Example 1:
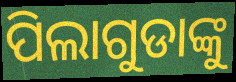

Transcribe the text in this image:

ପିଲାଗୁଡାଙ୍କୁ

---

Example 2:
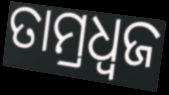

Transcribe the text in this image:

ତାମ୍ରଧ୍ୱଜ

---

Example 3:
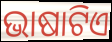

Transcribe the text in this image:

ଭାଷାଟିଏ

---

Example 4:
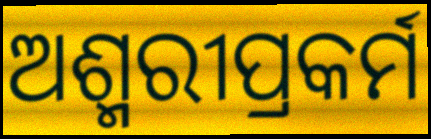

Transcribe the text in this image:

ଅଶ୍ମରୀପ୍ରକର୍ମ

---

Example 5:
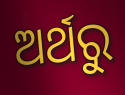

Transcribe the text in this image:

ଅର୍ଥରୁ